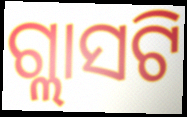
ଗ୍ଲାସଟି